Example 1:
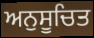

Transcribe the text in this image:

ਅਨੁਸੂਚਿਤ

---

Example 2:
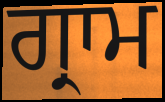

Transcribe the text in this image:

ਗ੍ਰਾਮ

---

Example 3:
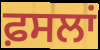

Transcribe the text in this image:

ਫ਼ਸਲਾਂ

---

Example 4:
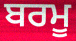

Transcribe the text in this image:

ਬਰਮੂ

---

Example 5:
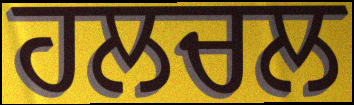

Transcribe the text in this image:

ਹਲਚਲ